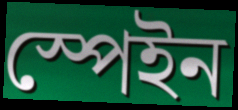
স্পেইন